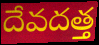
దేవదత్త